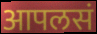
आपलसं